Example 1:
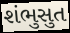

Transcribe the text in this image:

શંભુસુત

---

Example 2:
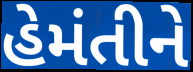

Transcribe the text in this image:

હેમંતીને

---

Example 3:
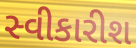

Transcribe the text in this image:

સ્વીકારીશ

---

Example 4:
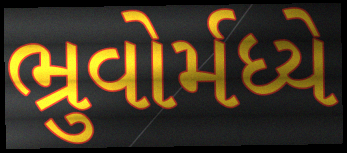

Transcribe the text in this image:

ભ્રુવોર્મધ્યે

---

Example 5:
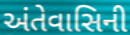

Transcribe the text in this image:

અંતેવાસિની